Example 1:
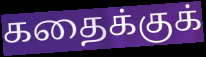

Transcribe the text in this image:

கதைக்குக்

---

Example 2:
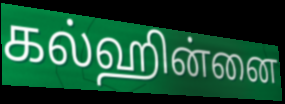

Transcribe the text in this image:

கல்ஹின்னை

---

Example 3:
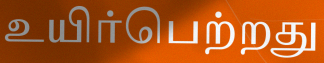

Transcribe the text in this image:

உயிர்பெற்றது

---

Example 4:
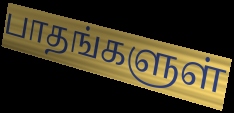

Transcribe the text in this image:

பாதங்களுள்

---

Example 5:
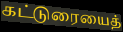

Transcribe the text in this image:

கட்டுரையைத்